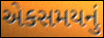
એકસમયનું